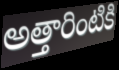
అత్తారింటికి